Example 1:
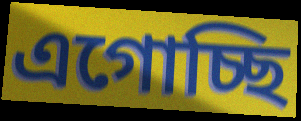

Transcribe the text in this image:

এগোচ্ছি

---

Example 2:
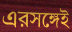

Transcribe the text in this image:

এরসঙ্গেই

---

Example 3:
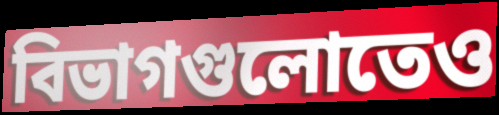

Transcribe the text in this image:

বিভাগগুলোতেও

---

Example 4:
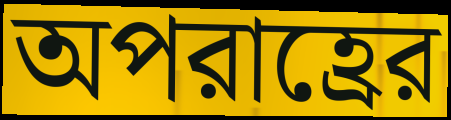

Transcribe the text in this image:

অপরাহ্রের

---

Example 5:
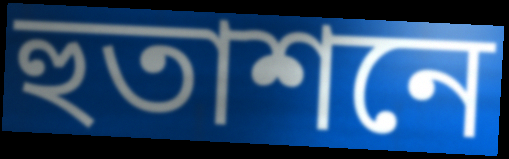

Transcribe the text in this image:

হুতাশনে